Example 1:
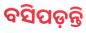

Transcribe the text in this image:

ବସିପଡ଼ନ୍ତି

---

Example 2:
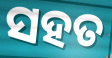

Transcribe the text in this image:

ସହତ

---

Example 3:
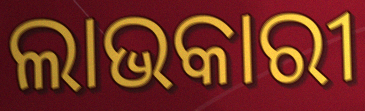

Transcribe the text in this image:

ଲାଭକାରୀ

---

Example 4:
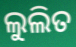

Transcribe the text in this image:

ଲୁଲିତ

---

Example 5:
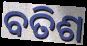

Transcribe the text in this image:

ବତିଶ